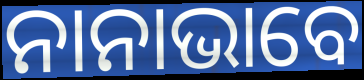
ନାନାଭାବେ